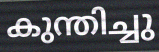
കുന്തിച്ചു